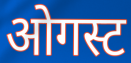
ओगस्ट